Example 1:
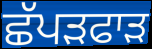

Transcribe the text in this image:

ਛੱਪੜਫਾੜ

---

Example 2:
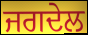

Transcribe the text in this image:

ਜਗਦੇਲ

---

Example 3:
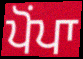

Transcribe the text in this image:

ਪੋਂਪਾ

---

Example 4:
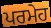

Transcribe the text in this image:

ਪਰਮੇਹ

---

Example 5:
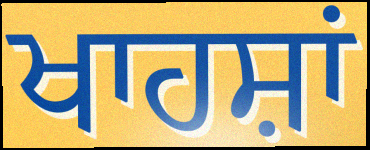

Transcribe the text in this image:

ਖਾਹਸ਼ਾਂ